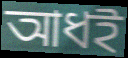
আধই